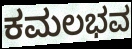
ಕಮಲಭವ